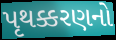
પૃથક્કરણનો